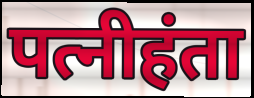
पत्नीहंता